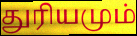
துரியமும்